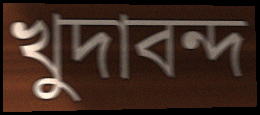
খুদাবন্দ